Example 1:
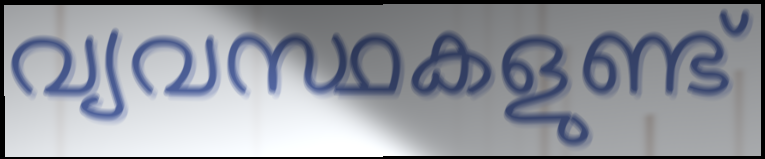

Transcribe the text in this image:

വ്യവസ്ഥകളുണ്ട്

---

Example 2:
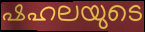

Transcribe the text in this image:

ഷഹലയുടെ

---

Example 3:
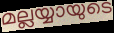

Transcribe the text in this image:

മല്ലയ്യായുടെ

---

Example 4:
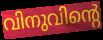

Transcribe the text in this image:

വിനുവിന്റെ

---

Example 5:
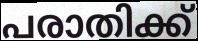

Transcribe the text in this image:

പരാതിക്ക്